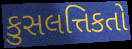
કુસલત્તિકતો